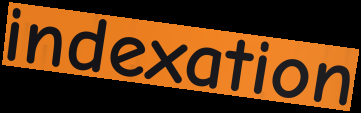
indexation